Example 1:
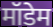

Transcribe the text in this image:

मॉडेम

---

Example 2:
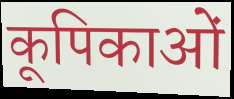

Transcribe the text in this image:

कूपिकाओं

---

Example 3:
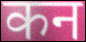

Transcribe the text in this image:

कन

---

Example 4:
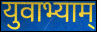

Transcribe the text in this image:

युवाभ्याम्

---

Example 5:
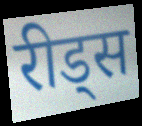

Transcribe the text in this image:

रीड्स